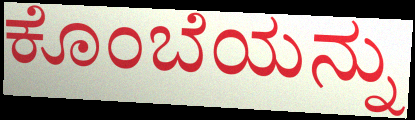
ಕೊಂಬೆಯನ್ನು